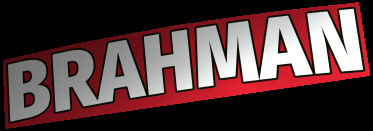
BRAHMAN